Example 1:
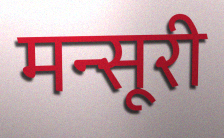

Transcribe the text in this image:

मन्सूरी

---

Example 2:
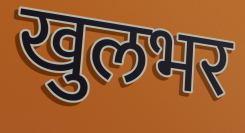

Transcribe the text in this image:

खुलभर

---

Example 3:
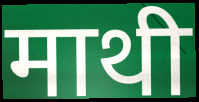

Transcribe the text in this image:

माथी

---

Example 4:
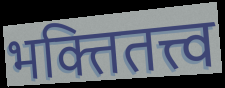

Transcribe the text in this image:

भक्तितत्त्व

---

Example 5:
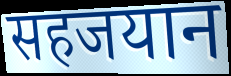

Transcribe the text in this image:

सहजयान